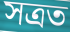
সত্ৰত